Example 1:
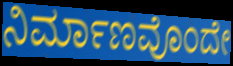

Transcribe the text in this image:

ನಿರ್ಮಾಣವೊಂದೇ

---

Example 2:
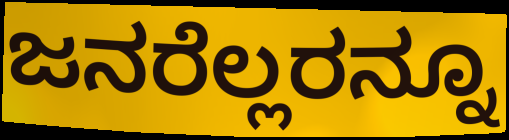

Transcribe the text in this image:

ಜನರೆಲ್ಲರನ್ನೂ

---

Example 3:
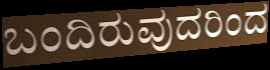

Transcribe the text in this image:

ಬಂದಿರುವುದರಿಂದ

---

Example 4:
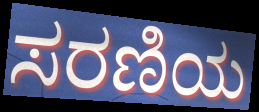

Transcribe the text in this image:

ಸರಣಿಯ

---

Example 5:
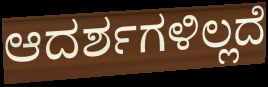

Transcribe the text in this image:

ಆದರ್ಶಗಳಿಲ್ಲದೆ